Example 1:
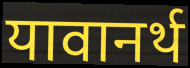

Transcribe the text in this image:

यावानर्थ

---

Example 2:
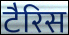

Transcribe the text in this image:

टैरिस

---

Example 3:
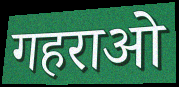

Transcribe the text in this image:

गहराओ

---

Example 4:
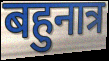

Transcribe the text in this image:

बहुनात्र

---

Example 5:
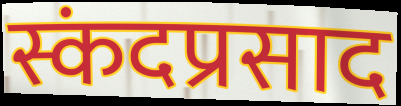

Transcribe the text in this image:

स्कंदप्रसाद